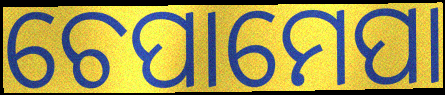
ଚେପାମେପା